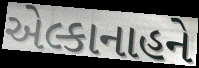
એલ્કાનાહને